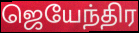
ஜெயேந்திர